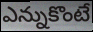
ఎన్నుకొంటే